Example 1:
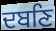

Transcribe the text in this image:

ਦਬਣਿ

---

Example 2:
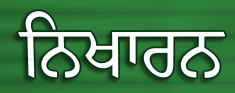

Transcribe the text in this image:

ਨਿਖਾਰਨ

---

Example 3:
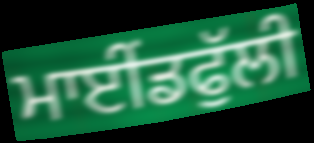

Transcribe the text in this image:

ਮਾਈਂਡਫੁੱਲੀ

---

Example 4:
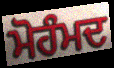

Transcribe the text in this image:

ਮੋਹੰਮਦ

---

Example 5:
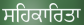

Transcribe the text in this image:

ਸਹਿਕਾਰਿਤਾ